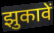
झुकावें